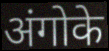
अंगोके